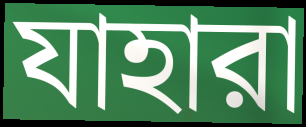
যাহারা